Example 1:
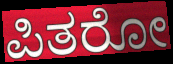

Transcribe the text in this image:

ಪಿತರೋ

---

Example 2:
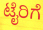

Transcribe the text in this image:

ಟೈರಿಗೆ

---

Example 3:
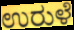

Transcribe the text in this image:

ಉರುಳೆ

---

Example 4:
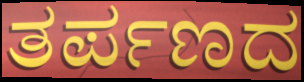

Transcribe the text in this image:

ತರ್ಪಣದ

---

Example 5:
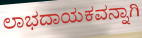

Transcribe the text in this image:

ಲಾಭದಾಯಕವನ್ನಾಗಿ